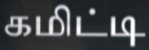
கமிட்டி